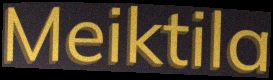
Meiktila